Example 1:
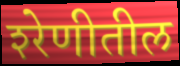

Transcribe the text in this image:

श्रेणीतील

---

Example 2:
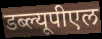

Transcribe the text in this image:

डब्ल्यूपीएल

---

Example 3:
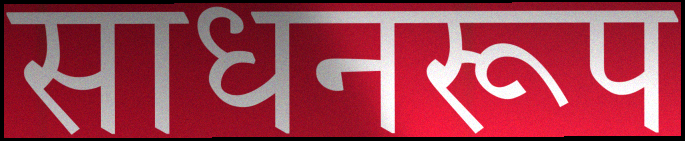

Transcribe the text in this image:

साधनरूप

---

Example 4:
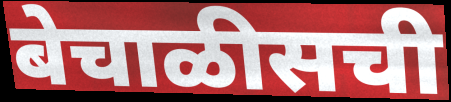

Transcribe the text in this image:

बेचाळीसची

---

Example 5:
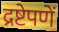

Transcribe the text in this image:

द्रष्टेपणें